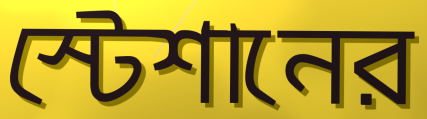
স্টেশানের